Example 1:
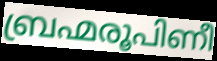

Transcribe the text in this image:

ബ്രഹ്മരൂപിണീ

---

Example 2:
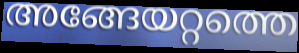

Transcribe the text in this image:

അങ്ങേയറ്റത്തെ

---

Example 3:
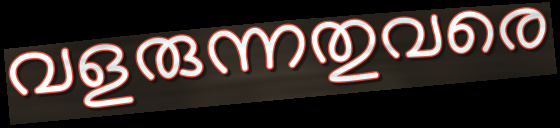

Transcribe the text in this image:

വളരുന്നതുവരെ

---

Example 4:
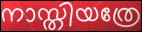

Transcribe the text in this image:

നാസ്തിയത്രേ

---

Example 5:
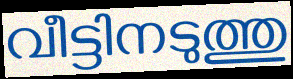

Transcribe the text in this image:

വീട്ടിനടുത്തു